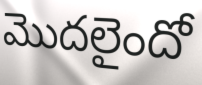
మొదలైందో